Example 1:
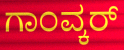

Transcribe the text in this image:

ಗಾಂವ್ಕರ್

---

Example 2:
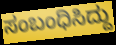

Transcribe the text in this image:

ಸಂಬಂಧಿಸಿದ್ದು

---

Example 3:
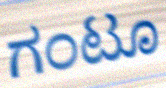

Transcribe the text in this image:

ಗಂಟೂ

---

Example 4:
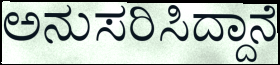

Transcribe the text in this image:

ಅನುಸರಿಸಿದ್ದಾನೆ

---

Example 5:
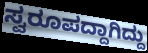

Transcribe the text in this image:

ಸ್ವರೂಪದ್ದಾಗಿದ್ದು